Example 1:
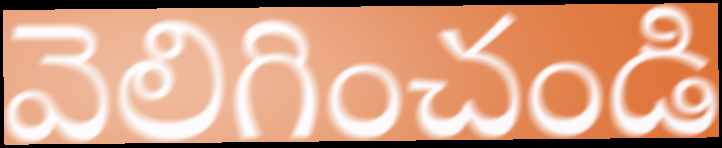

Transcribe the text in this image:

వెలిగించండి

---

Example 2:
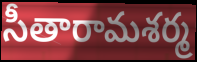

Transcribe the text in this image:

సీతారామశర్మ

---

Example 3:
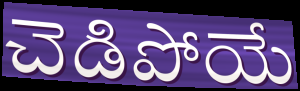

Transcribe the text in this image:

చెడిపోయే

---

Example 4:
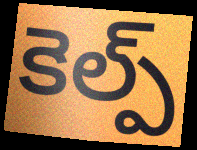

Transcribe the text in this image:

కెల్ప్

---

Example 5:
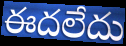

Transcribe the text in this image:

ఈదలేదు